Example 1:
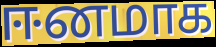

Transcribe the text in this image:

ஈனமாக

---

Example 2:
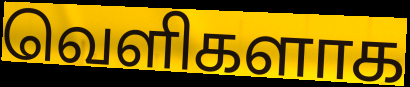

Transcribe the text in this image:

வெளிகளாக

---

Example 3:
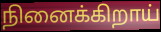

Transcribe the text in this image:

நினைக்கிறாய்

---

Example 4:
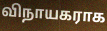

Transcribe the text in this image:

விநாயகராக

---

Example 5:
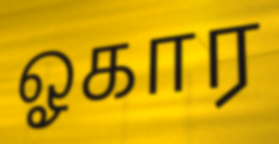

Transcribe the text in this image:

ஓகார